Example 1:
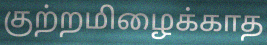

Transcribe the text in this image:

குற்றமிழைக்காத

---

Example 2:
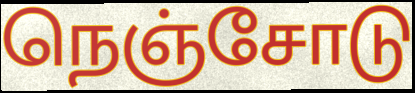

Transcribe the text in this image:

நெஞ்சோடு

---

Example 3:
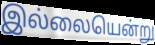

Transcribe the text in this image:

இல்லையென்று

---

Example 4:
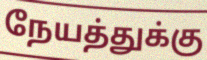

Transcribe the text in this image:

நேயத்துக்கு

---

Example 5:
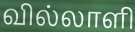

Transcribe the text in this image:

வில்லாளி